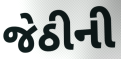
જેઠીની